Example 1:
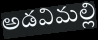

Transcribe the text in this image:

అడవిమల్లి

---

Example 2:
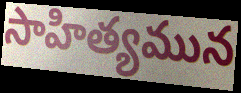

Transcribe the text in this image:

సాహిత్యమున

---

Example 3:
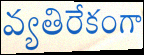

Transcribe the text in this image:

వ్యతిరేకంగా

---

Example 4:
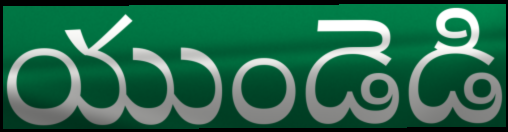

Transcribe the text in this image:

యుండెడి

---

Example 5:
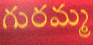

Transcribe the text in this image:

గురమ్మ